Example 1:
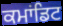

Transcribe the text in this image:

ਕਮਾਂਡਿਟ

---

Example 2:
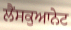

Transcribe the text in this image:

ਲੈਂਸਕੁਆਨੇਟ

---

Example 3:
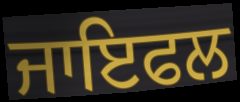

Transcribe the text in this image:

ਜਾਇਫਲ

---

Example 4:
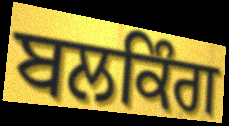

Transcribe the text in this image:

ਬਲਕਿੰਗ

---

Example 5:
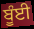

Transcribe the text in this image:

ਬੂੰਈ